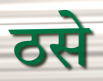
ठसे